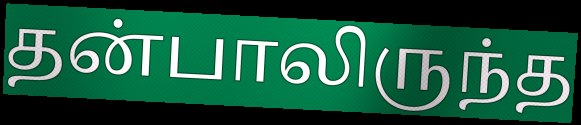
தன்பாலிருந்த